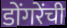
डोंगरेंची